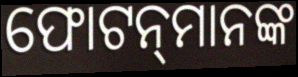
ଫୋଟନ୍‍ମାନଙ୍କ